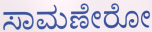
ಸಾಮಣೇರೋ